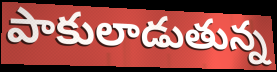
పాకులాడుతున్న